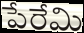
పేరేమి